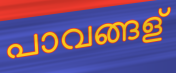
പാവങ്ങള്